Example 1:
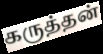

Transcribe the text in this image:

கருத்தன்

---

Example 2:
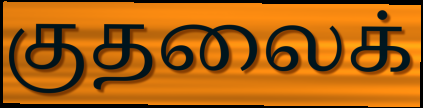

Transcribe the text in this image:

குதலைக்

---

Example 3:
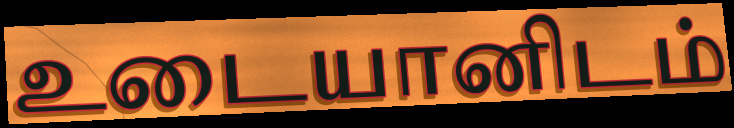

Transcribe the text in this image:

உடையானிடம்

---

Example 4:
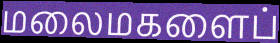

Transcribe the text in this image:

மலைமகளைப்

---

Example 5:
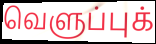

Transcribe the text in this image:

வெளுப்புக்